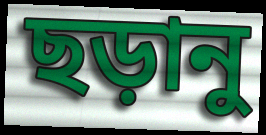
ছড়ানু